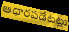
ఆధారపడేటట్లు